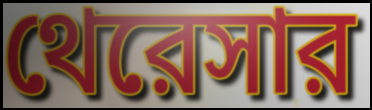
থেরেসার